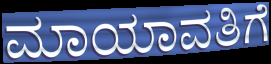
ಮಾಯಾವತಿಗೆ